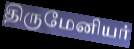
திருமேனியர்